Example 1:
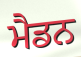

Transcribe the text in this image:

ਮੈਡਨ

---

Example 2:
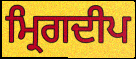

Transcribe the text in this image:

ਮ੍ਰਿਗਦੀਪ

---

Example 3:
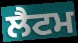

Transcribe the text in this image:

ਲੈਟਮ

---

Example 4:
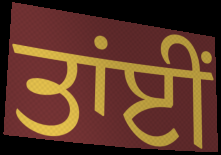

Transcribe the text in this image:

ਤਾਂਈਂ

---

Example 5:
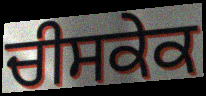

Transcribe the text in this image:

ਚੀਸਕੇਕ